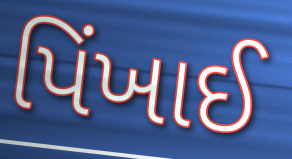
પિંખાઈ